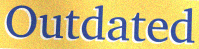
Outdated